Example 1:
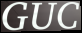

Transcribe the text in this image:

GUC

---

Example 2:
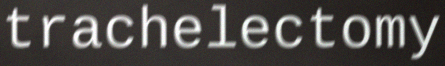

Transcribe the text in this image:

trachelectomy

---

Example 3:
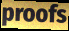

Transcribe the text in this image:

proofs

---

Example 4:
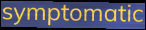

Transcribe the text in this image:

symptomatic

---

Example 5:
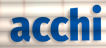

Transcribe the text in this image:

acchi